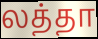
லத்தா